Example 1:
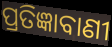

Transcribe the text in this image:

ପ୍ରତିଜ୍ଞାବାଣୀ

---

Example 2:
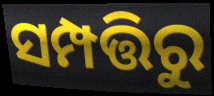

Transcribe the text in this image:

ସମ୍ପତ୍ତିରୁ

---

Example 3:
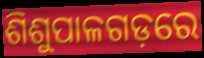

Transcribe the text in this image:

ଶିଶୁପାଳଗଡ଼ରେ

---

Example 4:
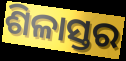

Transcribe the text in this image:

ଶିଳାସ୍ତର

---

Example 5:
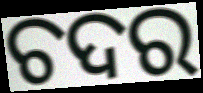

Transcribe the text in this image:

ଚଦର